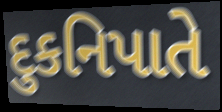
દુકનિપાતે